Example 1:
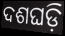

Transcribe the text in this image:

ଦଶଘଡ଼ି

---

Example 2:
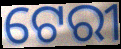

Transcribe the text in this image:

ଟେରୀ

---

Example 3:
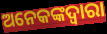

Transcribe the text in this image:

ଅନେକଙ୍କଦ୍ୱାରା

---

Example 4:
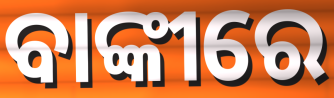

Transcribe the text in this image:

ବାଙ୍କୀରେ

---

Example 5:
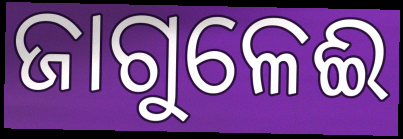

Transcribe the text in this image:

ଜାଗୁଳେଈ